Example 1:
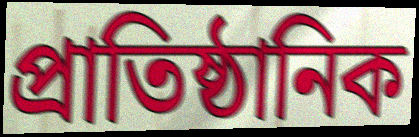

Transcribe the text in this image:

প্রাতিষ্ঠানিক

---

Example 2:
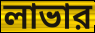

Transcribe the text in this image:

লাভার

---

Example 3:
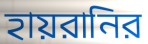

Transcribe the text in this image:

হায়রানির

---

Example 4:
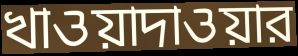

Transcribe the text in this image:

খাওয়াদাওয়ার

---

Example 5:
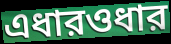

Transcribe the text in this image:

এধারওধার